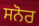
ਸਨੋਰ